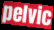
pelvic